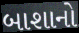
બાશાનો